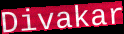
Divakar